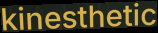
kinesthetic